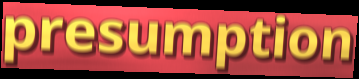
presumption